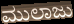
ಮುಲಾಜು